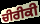
ਚੀਰੀਕੀ